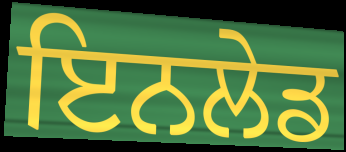
ਇਨਲੇਡ